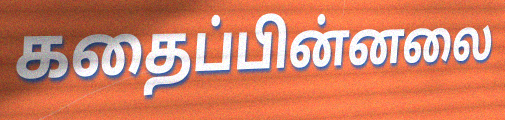
கதைப்பின்னலை